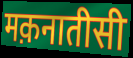
मक़नातीसी